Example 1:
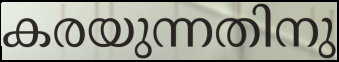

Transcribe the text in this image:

കരയുന്നതിനു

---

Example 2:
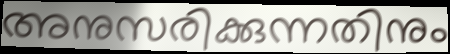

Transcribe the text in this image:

അനുസരിക്കുന്നതിനും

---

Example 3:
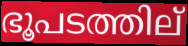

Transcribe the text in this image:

ഭൂപടത്തില്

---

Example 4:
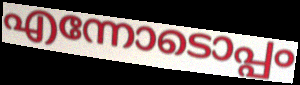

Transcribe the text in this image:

എന്നോടൊപ്പം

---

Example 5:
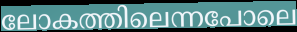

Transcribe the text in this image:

ലോകത്തിലെന്നപോലെ